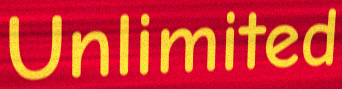
Unlimited